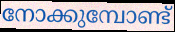
നോക്കുമ്പോണ്ട്